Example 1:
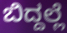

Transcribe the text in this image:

ಬಿದ್ದಲ್ಲೆ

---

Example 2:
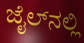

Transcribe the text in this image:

ಜೈಲ್‌ನಲ್ಲಿ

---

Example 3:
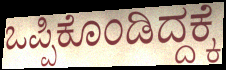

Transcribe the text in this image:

ಒಪ್ಪಿಕೊಂಡಿದ್ದಕ್ಕೆ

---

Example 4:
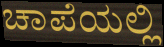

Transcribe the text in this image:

ಚಾಪೆಯಲ್ಲಿ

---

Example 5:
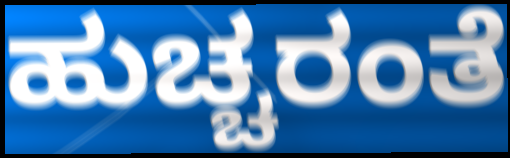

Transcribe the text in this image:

ಹುಚ್ಚರಂತೆ